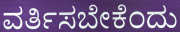
ವರ್ತಿಸಬೇಕೆಂದು